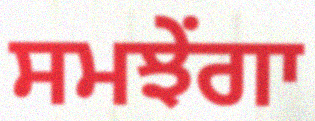
ਸਮਝੇਂਗਾ